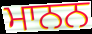
ਮਾਨਨ